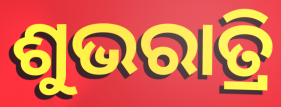
ଶୁଭରାତ୍ରି